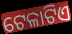
ଟେଳାଟିଏ